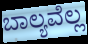
ಬಾಲ್ಯವೆಲ್ಲ